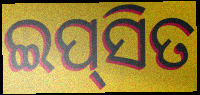
ଇପ୍‌ସିତ